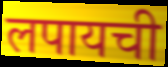
लपायची